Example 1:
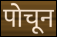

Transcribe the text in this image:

पोचून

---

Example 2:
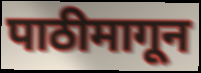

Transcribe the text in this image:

पाठीमागून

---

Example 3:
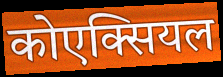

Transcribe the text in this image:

कोएक्सियल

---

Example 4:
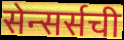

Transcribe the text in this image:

सेन्सर्सची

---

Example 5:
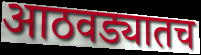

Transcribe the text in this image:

आठवड्यातच